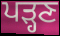
ਪੜ੍ਹਣ